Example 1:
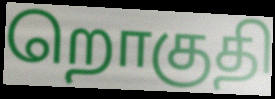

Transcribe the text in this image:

றொகுதி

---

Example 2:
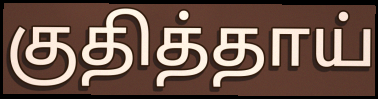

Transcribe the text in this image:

குதித்தாய்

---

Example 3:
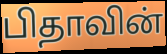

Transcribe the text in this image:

பிதாவின்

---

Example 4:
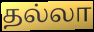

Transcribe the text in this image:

தல்லா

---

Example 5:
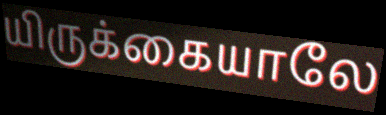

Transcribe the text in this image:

யிருக்கையாலே